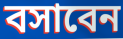
বসাবেন